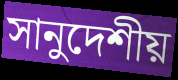
সানুদেশীয়